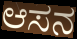
ಆಸನ